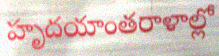
హృదయాంతరాళాల్లో